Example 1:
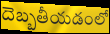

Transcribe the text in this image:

దెబ్బతీయడంలో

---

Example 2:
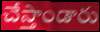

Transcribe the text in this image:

చేస్తాండారు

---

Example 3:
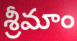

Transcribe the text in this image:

శ్రీమాం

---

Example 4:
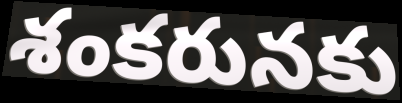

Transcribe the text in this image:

శంకరునకు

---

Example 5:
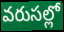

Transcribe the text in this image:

వరుసల్లో